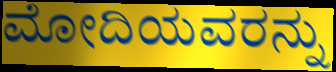
ಮೋದಿಯವರನ್ನು